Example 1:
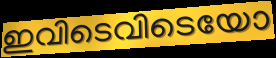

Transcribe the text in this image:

ഇവിടെവിടെയോ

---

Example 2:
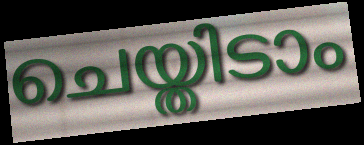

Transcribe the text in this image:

ചെയ്തിടാം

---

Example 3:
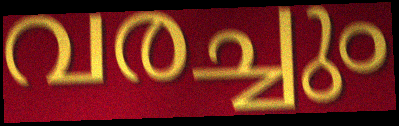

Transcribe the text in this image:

വരച്ചും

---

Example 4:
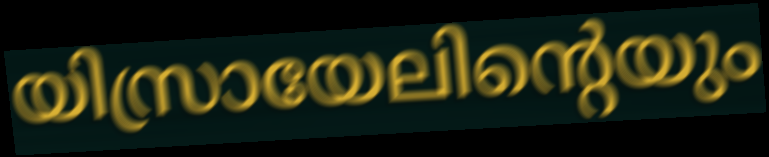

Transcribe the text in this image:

യിസ്രായേലിന്റെയും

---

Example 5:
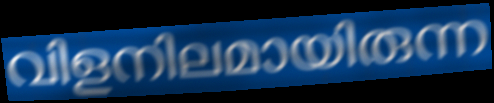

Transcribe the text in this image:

വിളനിലമായിരുന്ന